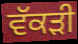
ਵੱਕੜੀ